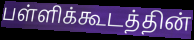
பள்ளிக்கூடத்தின்